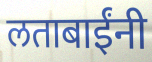
लताबाईंनी